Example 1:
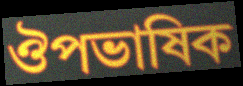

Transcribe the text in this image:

ঔপভাষিক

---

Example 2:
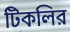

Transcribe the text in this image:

টিকলির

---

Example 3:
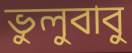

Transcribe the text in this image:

ভুলুবাবু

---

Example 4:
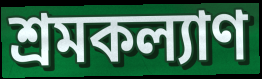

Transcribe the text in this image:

শ্রমকল্যাণ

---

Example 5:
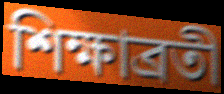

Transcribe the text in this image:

শিক্ষাব্রতী